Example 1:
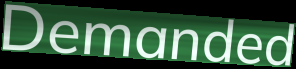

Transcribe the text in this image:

Demanded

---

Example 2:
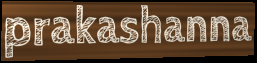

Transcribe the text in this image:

prakashanna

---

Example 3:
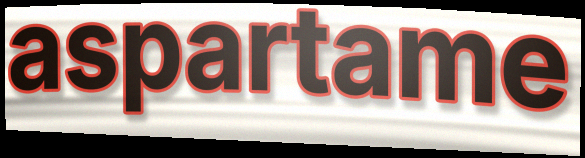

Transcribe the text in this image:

aspartame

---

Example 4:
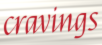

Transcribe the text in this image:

cravings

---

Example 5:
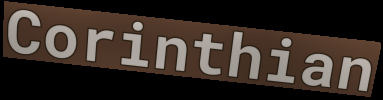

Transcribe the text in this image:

Corinthian